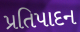
પ્રતિપાદન